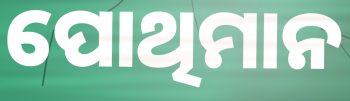
ପୋଥିମାନ